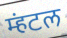
म्हंटल